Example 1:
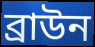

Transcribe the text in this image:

ব্রাউন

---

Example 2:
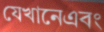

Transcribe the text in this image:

যেখানেএবং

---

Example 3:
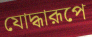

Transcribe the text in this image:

যোদ্ধারূপে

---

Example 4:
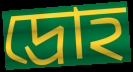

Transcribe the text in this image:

দ্রোহ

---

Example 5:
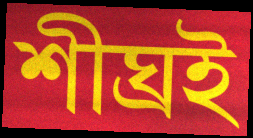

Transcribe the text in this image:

শীঘ্রই